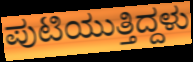
ಪುಟಿಯುತ್ತಿದ್ದಳು